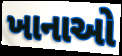
ખાનાઓ